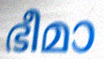
ഭീമാ